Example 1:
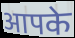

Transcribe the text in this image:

आपके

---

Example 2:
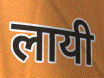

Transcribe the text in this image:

लायी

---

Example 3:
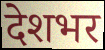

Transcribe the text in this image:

देशभर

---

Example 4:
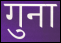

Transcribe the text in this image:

गुना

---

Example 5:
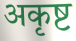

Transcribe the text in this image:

अकृष्ट